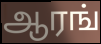
ஆரங்